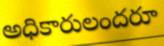
అధికారులందరూ